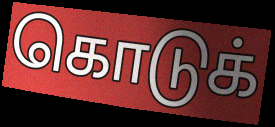
கொடுக்